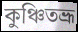
কুঞ্চিতভ্রূ